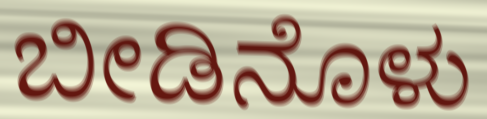
ಬೀಡಿನೊಳು